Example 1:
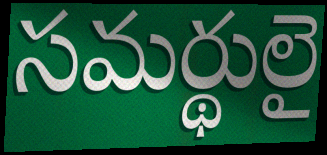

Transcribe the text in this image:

సమర్థులై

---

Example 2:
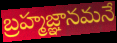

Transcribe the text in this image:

బ్రహ్మజ్ఞానమనే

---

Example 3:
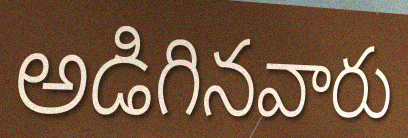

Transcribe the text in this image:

అడిగినవారు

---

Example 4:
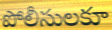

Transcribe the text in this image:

పోలీసులకూ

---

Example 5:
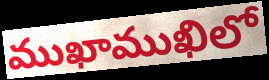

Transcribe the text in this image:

ముఖాముఖిలో